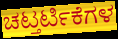
ಚಟ್ತರ್ಟಿಕೆಗಳ